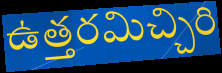
ఉత్తరమిచ్చిరి